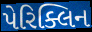
પેરિક્લિન